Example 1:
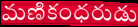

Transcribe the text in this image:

మణికంధరుడు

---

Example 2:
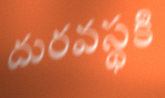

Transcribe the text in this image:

దురవస్థకి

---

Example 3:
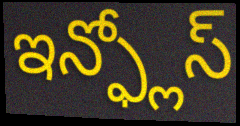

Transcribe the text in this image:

ఇన్ఫ్లోస్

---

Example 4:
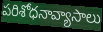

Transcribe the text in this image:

పరిశోధనావ్యాసాలు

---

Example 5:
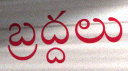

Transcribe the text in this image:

బ్రద్దలు